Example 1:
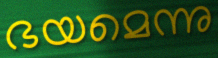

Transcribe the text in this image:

ഭയമെന്നു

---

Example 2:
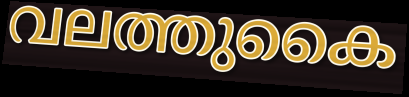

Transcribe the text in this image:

വലത്തുകൈ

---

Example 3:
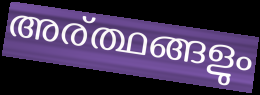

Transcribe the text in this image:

അര്ത്ഥങ്ങളും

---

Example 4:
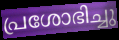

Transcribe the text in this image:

പ്രശോഭിച്ചു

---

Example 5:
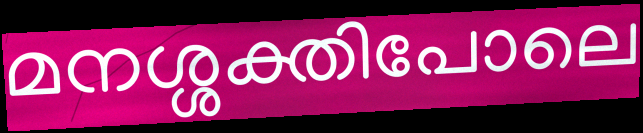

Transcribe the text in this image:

മനശ്ശക്തിപോലെ